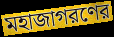
মহাজাগরণের